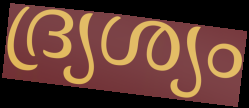
ദ്ര്യശ്യം